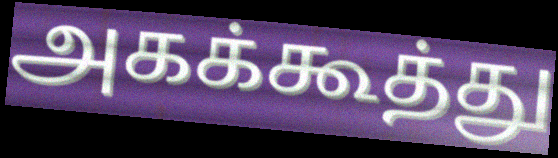
அகக்கூத்து